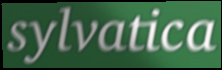
sylvatica